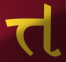
ત્ત